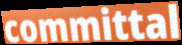
committal